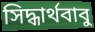
সিদ্ধার্থবাবু